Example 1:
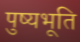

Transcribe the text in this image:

पुष्यभूति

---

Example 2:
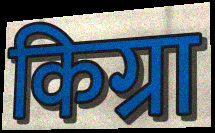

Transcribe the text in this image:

किग्रा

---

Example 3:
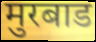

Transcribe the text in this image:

मुरबाड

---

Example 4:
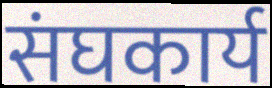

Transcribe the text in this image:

संघकार्य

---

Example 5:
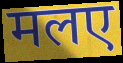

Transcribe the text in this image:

मलए